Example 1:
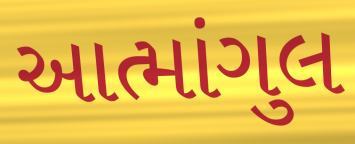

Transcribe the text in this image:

આત્માંગુલ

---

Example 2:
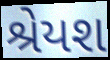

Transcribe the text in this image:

શ્રેયશ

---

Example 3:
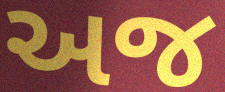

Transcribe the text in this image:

અજ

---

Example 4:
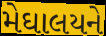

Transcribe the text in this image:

મેઘાલયને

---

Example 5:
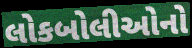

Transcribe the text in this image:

લોકબોલીઓનો